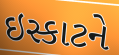
ઇસ્કાટને